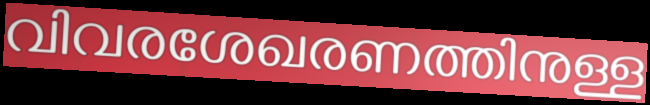
വിവരശേഖരണത്തിനുള്ള